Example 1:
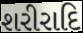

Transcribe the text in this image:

શરીરાદિ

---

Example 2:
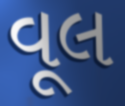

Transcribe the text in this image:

વૂલ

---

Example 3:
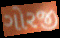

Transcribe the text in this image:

ગોરજી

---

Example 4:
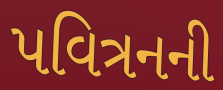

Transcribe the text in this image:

પવિત્રનની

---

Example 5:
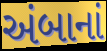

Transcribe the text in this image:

અંબાનાં